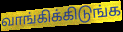
வாங்கிக்கிடுங்க